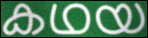
കഥയ